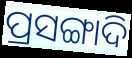
ପ୍ରସଙ୍ଗାଦି